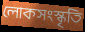
লোকসংস্কৃতি